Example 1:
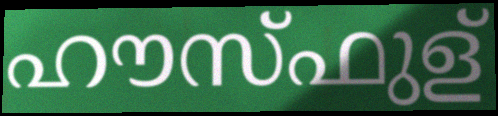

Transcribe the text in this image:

ഹൗസ്ഫുള്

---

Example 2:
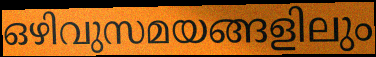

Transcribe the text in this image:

ഒഴിവുസമയങ്ങളിലും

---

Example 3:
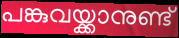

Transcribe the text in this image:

പങ്കുവയ്ക്കാനുണ്ട്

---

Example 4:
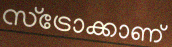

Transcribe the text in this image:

സ്ട്രോക്കാണ്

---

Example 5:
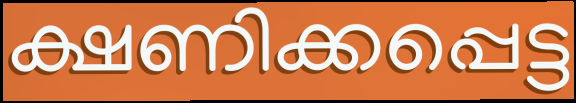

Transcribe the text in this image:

ക്ഷണിക്കപ്പെട്ട